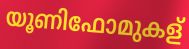
യൂണിഫോമുകള്